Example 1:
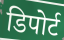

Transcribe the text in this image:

डिपोर्ट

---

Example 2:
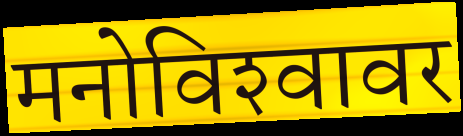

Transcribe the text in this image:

मनोविश्वावर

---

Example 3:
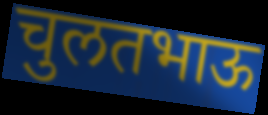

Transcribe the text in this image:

चुलतभाऊ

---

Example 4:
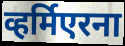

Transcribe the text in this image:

व्हर्मिएरना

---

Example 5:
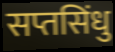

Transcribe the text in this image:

सप्तसिंधु